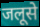
जलूसे